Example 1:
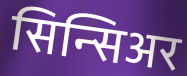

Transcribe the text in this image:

सिन्सिअर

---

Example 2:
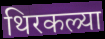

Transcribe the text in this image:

थिरकल्या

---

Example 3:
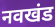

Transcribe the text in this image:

नवखंड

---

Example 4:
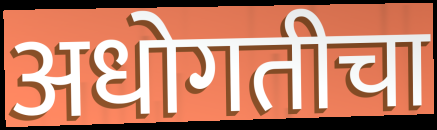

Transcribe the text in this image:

अधोगतीचा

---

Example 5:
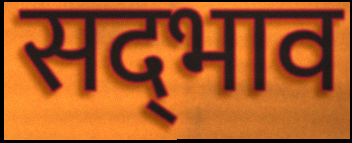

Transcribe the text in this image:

सद्‍भाव